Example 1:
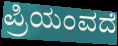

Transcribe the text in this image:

ಪ್ರಿಯಂವದೆ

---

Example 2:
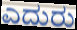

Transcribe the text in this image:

ಎದುರು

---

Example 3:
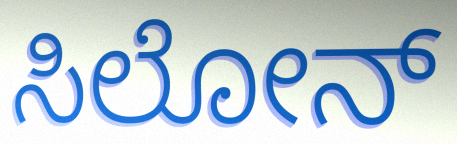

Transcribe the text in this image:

ಸಿಲೋನ್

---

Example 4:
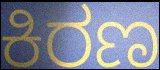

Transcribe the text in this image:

ಕಿರಣ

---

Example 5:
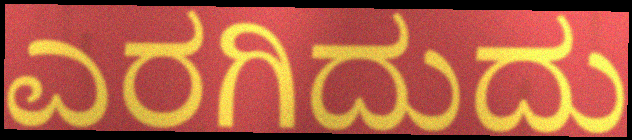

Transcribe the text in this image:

ಎರಗಿದುದು